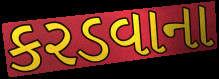
કરડવાના